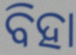
ବିହା